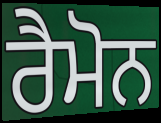
ਰੈਮੋਨ